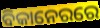
ବିକାନେରରେ